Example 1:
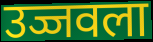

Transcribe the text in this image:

उज्जवला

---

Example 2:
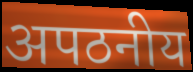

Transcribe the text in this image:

अपठनीय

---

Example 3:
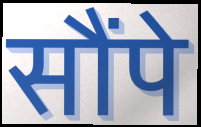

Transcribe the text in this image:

सौंपे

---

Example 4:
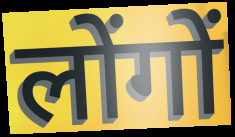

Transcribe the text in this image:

लोंगों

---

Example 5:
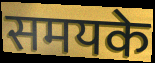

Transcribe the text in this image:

समयके